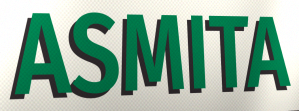
ASMITA